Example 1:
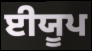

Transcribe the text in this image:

ਈਯੂਪ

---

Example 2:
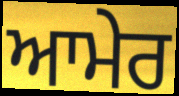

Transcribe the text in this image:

ਆਮੇਰ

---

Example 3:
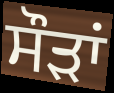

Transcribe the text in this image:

ਸੌੜਾਂ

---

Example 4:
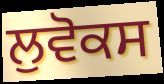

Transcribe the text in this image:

ਲੁਵੋਕਸ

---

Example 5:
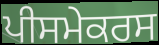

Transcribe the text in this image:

ਪੀਸਮੇਕਰਸ